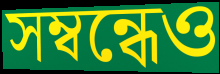
সম্বন্ধেও